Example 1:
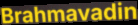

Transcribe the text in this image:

Brahmavadin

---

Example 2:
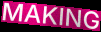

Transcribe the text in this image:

MAKING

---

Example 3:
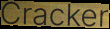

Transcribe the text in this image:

Cracker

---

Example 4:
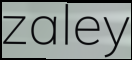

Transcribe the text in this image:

zaley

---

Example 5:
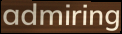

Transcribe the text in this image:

admiring